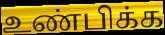
உண்பிக்க